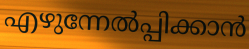
എഴുന്നേൽപ്പിക്കാൻ